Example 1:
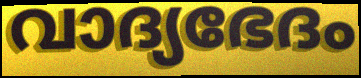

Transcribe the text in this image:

വാദ്യഭേദം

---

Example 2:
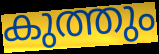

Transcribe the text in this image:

കുത്തും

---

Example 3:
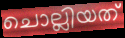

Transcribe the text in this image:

ചൊല്ലിയത്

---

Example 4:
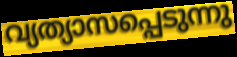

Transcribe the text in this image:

വ്യത്യാസപ്പെടുന്നു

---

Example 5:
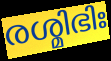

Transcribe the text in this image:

രശ്മിഭിഃ